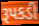
રૂપકડી